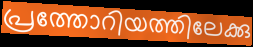
പ്രത്തോറിയത്തിലേക്കു